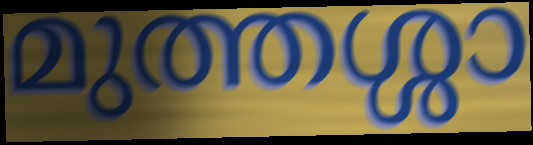
മുത്തശ്ശാ